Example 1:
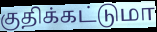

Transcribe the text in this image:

குதிக்கட்டுமா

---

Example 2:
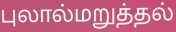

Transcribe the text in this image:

புலால்மறுத்தல்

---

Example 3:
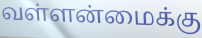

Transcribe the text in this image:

வள்ளன்மைக்கு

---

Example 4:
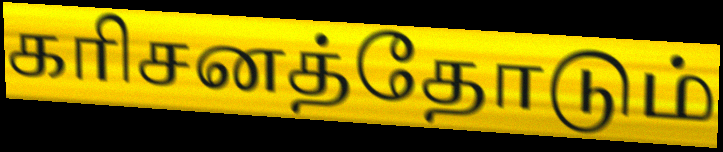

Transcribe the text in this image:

கரிசனத்தோடும்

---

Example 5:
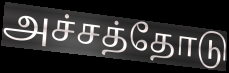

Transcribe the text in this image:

அச்சத்தோடு